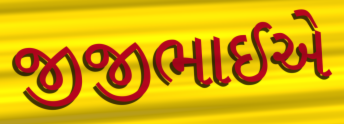
જીજીભાઈએ